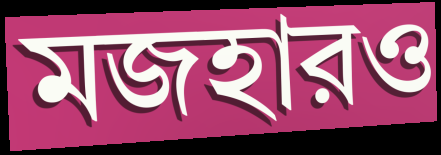
মজহারও